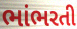
ભાંભરતી